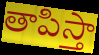
తాపిస్తా